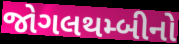
જોગલથમ્બીનો